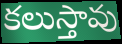
కలుస్తావు